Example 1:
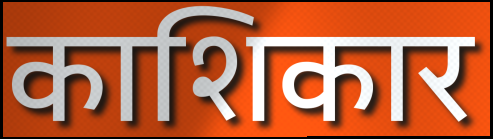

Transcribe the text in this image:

काशिकार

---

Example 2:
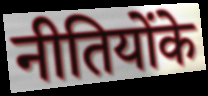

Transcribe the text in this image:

नीतियोंके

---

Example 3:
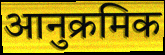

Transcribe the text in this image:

आनुक्रमिक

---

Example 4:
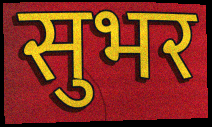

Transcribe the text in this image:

सुभर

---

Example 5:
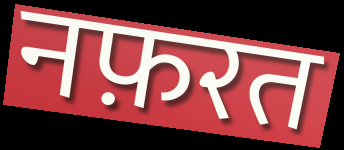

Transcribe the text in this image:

नफ़रत